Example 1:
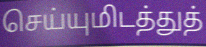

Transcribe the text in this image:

செய்யுமிடத்துத்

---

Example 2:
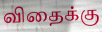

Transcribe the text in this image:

விதைக்கு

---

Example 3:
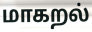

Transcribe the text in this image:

மாகறல்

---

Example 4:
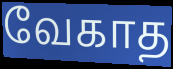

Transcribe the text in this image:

வேகாத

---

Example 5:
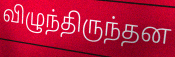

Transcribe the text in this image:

விழுந்திருந்தன